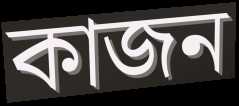
কাজন